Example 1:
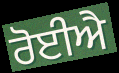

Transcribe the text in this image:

ਰੋਈਐ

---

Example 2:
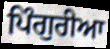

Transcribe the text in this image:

ਪਿੰਗੁਰੀਆ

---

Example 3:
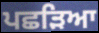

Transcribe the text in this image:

ਪਛੜਿਆ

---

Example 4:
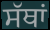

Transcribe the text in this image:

ਸੱਥਾਂ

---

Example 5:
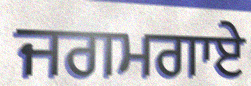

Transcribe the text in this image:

ਜਗਮਗਾਏ